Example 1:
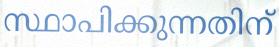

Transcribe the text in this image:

സ്ഥാപിക്കുന്നതിന്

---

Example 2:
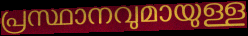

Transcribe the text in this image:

പ്രസ്ഥാനവുമായുള്ള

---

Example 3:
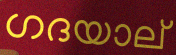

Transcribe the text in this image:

ഗദയാല്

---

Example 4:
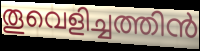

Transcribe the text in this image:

തൂവെളിച്ചത്തിൻ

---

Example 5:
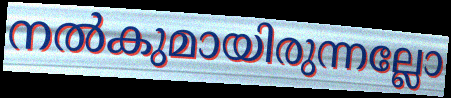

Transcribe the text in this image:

നൽകുമായിരുന്നല്ലോ